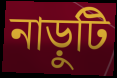
নাড়ুটি